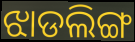
ଝାଡଲିଙ୍ଗ